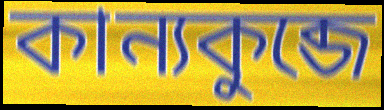
কান্যকুব্জে